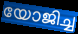
യോജിച്ച